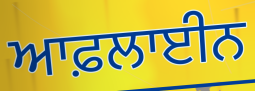
ਆਫ਼ਲਾਈਨ